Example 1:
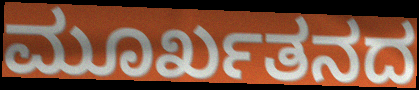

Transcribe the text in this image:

ಮೂರ್ಖತನದ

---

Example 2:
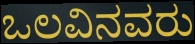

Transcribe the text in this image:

ಒಲವಿನವರು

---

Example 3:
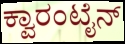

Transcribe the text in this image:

ಕ್ವಾರಂಟೈನ್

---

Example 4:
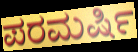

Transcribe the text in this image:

ಪರಮರ್ಷಿ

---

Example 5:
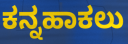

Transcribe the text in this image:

ಕನ್ನಹಾಕಲು